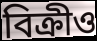
বিক্ৰীও